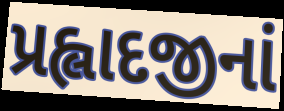
પ્રહ્લાદજીનાં